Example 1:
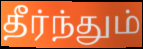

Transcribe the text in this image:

தீர்ந்தும்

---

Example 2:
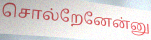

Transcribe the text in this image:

சொல்றேனேன்னு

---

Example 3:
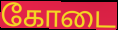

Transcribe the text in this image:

கோடை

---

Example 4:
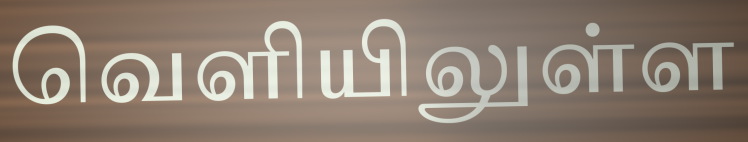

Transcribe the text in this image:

வெளியிலுள்ள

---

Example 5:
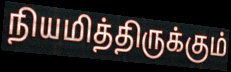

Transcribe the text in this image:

நியமித்திருக்கும்